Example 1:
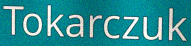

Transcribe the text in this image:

Tokarczuk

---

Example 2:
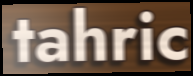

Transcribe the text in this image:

tahric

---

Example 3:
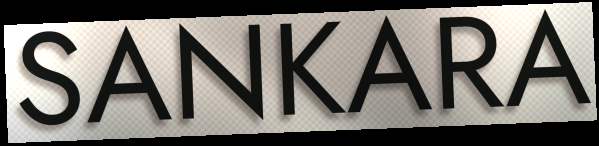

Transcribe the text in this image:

SANKARA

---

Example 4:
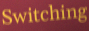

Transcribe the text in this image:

Switching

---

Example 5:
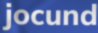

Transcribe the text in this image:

jocund